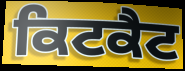
ਕਿਟਕੈਟ